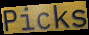
Picks